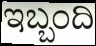
ಇಬ್ಬಂದಿ